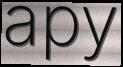
apy